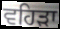
ਵਹਿੜਾ